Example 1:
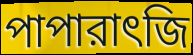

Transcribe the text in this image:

পাপারাৎজি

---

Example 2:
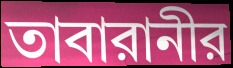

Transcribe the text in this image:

তাবারানীর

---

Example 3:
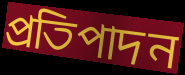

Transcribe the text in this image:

প্রতিপাদন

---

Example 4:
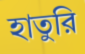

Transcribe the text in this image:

হাতুরি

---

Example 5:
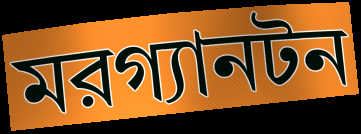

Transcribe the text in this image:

মরগ্যানটন